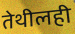
तेथीलही